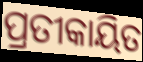
ପ୍ରତୀକାୟିତ